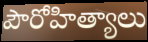
పౌరోహిత్యాలు